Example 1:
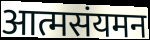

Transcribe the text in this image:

आत्मसंयमन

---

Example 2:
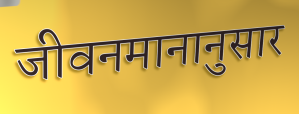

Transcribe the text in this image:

जीवनमानानुसार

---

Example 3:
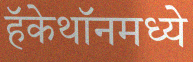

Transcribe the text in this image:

हॅकेथॉनमध्ये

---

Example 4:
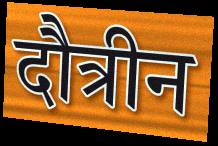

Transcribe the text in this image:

दौत्रीन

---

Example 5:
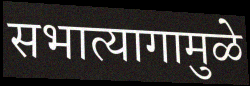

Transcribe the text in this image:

सभात्यागामुळे